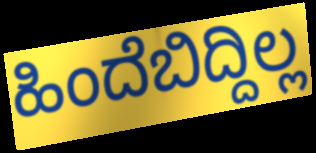
ಹಿಂದೆಬಿದ್ದಿಲ್ಲ